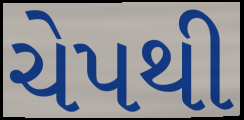
ચેપથી